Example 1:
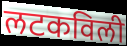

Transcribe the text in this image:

लटकविली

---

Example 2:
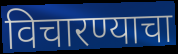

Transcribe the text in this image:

विचारण्याचा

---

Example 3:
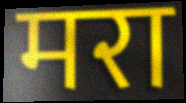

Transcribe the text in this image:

मरा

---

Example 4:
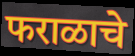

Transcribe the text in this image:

फराळाचे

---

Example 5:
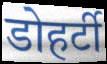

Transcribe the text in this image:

डोहर्टी